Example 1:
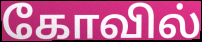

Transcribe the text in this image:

கோவில்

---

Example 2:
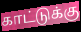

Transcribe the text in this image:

காட்டுக்கு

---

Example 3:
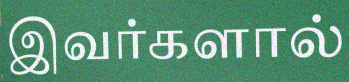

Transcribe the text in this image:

இவர்களால்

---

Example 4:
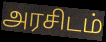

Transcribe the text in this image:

அரசிடம்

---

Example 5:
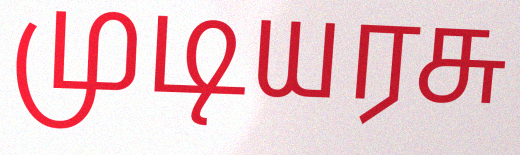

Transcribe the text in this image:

முடியரசு